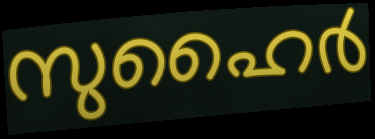
സുഹൈർ